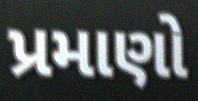
પ્રમાણો